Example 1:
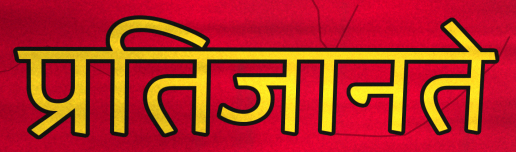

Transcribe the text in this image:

प्रतिजानते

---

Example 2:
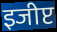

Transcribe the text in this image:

इजीप्ट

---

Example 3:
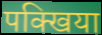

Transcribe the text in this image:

पक्खिया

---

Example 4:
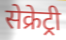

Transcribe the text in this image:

सेक्रेट्री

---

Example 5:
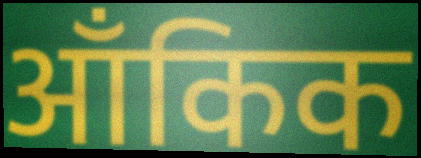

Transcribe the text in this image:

आँकिक